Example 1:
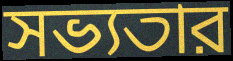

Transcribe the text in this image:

সভ্যতার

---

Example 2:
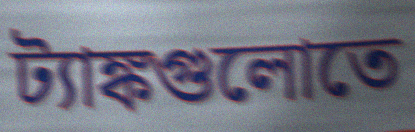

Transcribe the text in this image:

ট্যাঙ্কগুলোতে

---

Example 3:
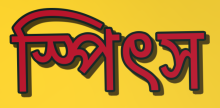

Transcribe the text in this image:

স্পিৎস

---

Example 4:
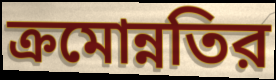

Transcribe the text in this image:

ক্রমোন্নতির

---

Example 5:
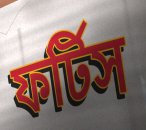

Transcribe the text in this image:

ফর্টিস